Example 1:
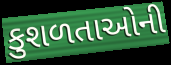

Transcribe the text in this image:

કુશળતાઓની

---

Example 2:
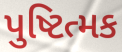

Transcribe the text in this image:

પુષ્ટિત્મક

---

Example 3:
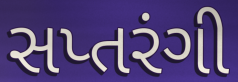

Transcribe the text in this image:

સપ્તરંગી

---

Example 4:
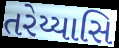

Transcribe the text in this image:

તરેય્યાસિ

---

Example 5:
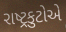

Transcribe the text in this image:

રાષ્ટ્રકુટોએ